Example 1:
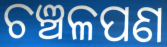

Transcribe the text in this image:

ଚଞ୍ଚଳପଣ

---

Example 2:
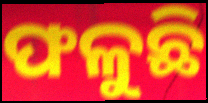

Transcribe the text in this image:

ଫଳୁଛି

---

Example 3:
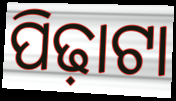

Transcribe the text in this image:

ପିଢ଼ାଟା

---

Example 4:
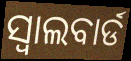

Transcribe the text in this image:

ସ୍ୱାଲବାର୍ଡ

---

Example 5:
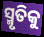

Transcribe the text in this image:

ସ୍ମୃତିକୁ